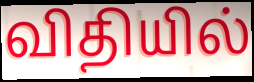
விதியில்